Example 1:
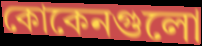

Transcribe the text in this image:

কোকেনগুলো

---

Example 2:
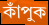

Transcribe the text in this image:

কাঁপুক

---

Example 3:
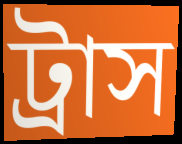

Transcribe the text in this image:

ট্রাস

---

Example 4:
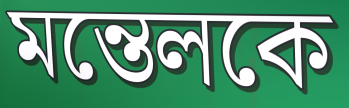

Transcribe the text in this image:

মন্তেলকে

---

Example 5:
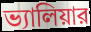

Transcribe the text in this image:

ভ্যালিয়ার